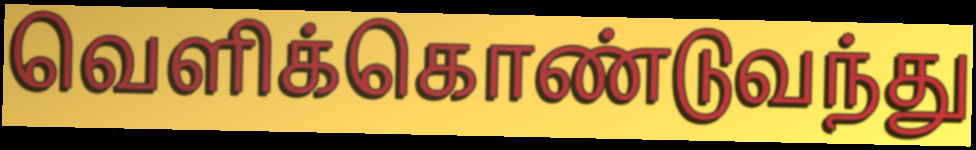
வெளிக்கொண்டுவந்து